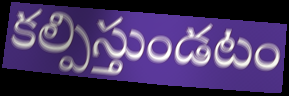
కల్పిస్తుండటం